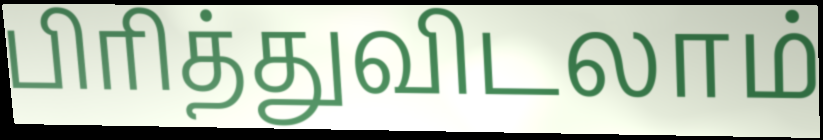
பிரித்துவிடலாம்